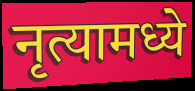
नृत्यामध्ये